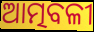
ଆତ୍ମବଳୀ